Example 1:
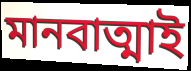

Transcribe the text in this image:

মানবাত্মাই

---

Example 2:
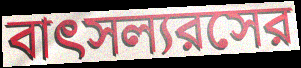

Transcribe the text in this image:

বাৎসল্যরসের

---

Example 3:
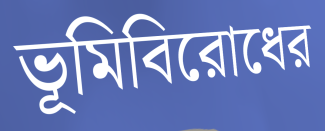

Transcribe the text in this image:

ভূমিবিরোধের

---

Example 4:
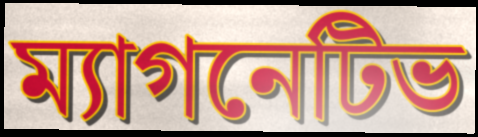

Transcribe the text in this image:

ম্যাগনেটিভ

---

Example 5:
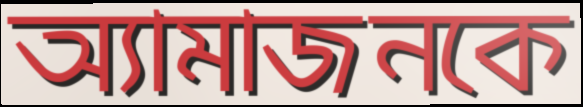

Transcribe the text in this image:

অ্যামাজনকে